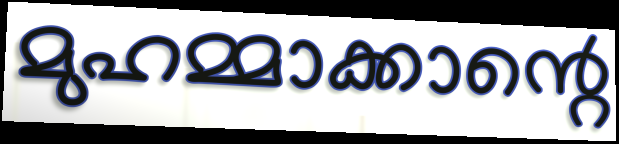
മുഹമ്മാക്കാന്റെ